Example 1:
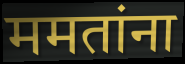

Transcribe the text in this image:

ममतांना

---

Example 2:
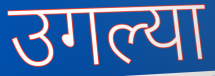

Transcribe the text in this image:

उगल्या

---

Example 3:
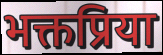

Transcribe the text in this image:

भक्तप्रिया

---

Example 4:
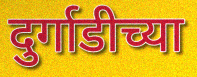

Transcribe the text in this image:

दुर्गाडीच्या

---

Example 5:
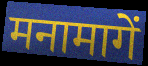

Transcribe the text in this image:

मनामागें